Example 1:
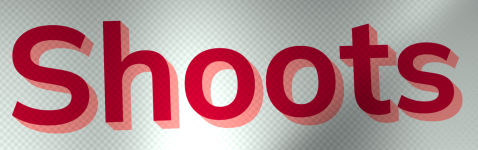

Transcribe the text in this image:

Shoots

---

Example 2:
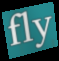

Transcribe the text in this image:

fly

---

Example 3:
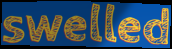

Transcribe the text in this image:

swelled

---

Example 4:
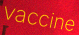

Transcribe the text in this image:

vaccine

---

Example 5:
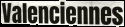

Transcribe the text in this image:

Valenciennes